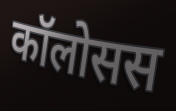
कॉलोसस